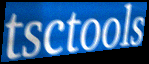
tsctools